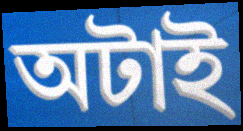
অটাই